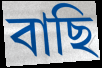
বাছি